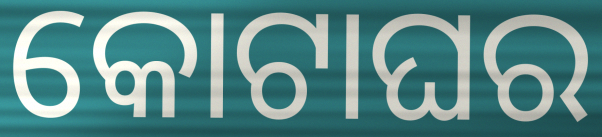
କୋଟାଘର